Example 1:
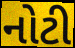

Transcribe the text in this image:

નોટી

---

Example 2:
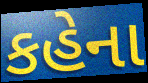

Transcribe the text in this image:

કહેના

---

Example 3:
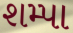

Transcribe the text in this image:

શમ્પા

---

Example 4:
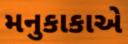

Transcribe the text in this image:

મનુકાકાએ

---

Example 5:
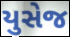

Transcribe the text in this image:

યુસેજ